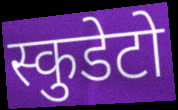
स्कुडेटो